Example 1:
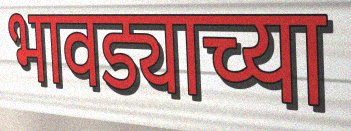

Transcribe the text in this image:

भावड्याच्या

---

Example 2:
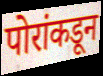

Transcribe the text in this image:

पोरांकडून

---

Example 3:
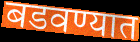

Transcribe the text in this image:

बडवण्यात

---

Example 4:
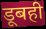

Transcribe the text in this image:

डूबही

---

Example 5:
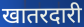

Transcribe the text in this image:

खातरदारी